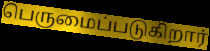
பெருமைப்படுகிறார்